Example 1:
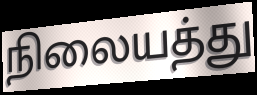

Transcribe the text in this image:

நிலையத்து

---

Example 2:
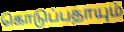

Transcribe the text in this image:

கொடுப்பதாயும்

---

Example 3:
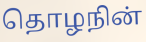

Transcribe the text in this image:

தொழநின்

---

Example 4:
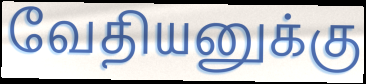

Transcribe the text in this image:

வேதியனுக்கு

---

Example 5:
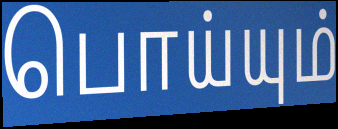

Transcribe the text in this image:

பொய்யும்